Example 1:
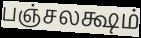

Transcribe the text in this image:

பஞ்சலக்ஷம்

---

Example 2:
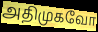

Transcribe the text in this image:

அதிமுகவோ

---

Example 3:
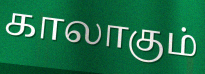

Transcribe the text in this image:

காலாகும்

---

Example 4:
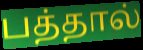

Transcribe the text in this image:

பத்தால்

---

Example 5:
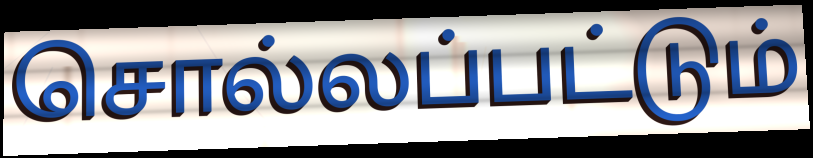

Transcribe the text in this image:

சொல்லப்பட்டும்